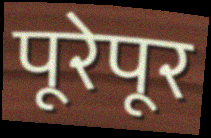
पूरेपूर